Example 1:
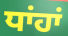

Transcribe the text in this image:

ਧਾਂਹਾਂ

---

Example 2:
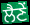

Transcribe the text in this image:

ਲੈਣੇਂ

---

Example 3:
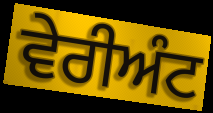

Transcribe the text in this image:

ਵੇਰੀਅੰਟ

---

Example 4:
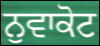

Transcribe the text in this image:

ਨੁਵਾਕੋਟ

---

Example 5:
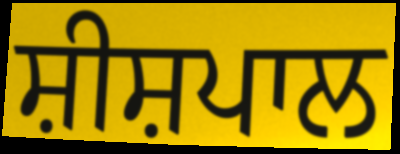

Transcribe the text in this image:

ਸ਼ੀਸ਼ਪਾਲ